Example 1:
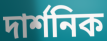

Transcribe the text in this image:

দাৰ্শনিক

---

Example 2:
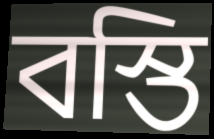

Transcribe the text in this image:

বস্তি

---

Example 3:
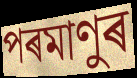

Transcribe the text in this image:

পৰমাণুৰ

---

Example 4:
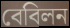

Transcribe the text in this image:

বেবিলন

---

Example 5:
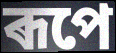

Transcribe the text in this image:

ৰূপে